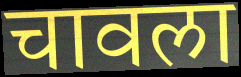
चावला